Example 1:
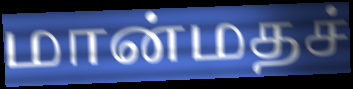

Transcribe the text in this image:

மான்மதச்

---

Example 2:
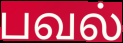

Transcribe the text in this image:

பவல்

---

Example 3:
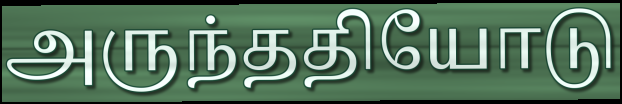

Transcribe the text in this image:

அருந்ததியோடு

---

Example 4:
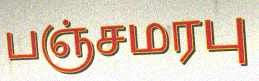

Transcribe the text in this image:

பஞ்சமரபு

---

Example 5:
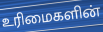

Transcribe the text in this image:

உரிமைகளின்